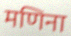
मणिना